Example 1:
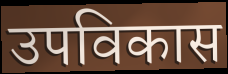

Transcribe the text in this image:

उपविकास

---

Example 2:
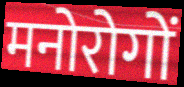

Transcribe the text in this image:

मनोरोगों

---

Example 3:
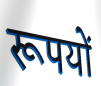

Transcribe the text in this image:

रूपयों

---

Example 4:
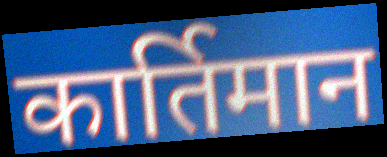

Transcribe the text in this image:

कार्तिमान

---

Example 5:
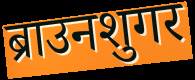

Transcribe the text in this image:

ब्राउनशुगर